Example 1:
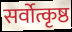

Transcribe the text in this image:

सर्वोत्कृष्ठ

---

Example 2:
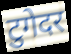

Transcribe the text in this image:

टुगेदर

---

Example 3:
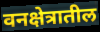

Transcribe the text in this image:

वनक्षेत्रातील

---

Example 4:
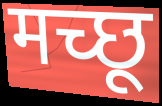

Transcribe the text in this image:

मच्छू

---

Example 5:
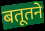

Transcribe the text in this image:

बतूतने